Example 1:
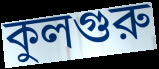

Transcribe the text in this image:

কুলগুরু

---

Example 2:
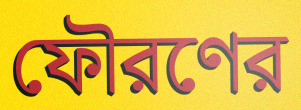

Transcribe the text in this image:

ফৌরণের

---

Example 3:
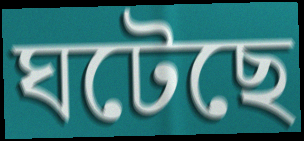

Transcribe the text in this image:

ঘটেছে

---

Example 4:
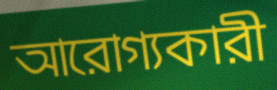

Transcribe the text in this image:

আরোগ্যকারী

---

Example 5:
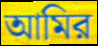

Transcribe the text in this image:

আমির